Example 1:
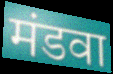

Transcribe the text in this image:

मंडवा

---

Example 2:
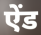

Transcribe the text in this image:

ऐंड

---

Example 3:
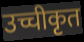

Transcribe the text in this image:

उच्चीकृत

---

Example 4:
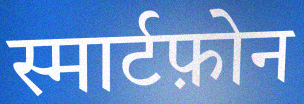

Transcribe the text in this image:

स्मार्टफ़ोन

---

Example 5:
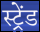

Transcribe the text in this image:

स्ट्रेंड